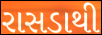
રાસડાથી